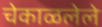
चेकाळलेले